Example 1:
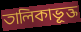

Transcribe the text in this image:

তালিকাভূক্ত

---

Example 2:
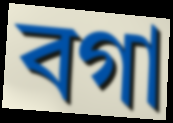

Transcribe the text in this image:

বগা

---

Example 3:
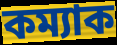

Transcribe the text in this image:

কম্যাক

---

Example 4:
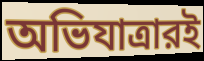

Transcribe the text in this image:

অভিযাত্রারই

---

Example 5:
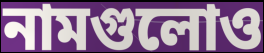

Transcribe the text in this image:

নামগুলোও